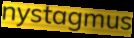
nystagmus